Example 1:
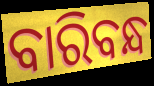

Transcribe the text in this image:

ବାରିବନ୍ଧ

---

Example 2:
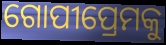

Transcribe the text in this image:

ଗୋପୀପ୍ରେମକୁ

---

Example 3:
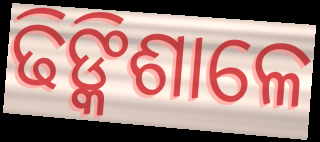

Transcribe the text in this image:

ଢିଙ୍କିଶାଳେ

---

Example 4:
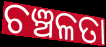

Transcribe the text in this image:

ଚଞ୍ଚଳତା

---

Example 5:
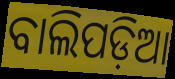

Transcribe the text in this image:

ବାଲିପଡ଼ିଆ